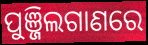
ପୁଞ୍ଜିଲଗାଣରେ